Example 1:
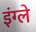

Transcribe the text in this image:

इंग्ले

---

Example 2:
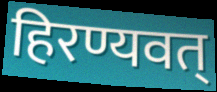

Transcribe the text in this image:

हिरण्यवत्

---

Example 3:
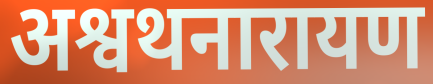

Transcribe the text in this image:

अश्वथनारायण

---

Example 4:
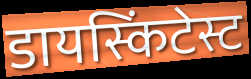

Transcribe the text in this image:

डायस्किंटेस्ट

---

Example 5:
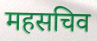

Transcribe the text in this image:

महसचिव